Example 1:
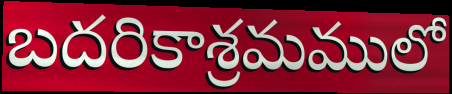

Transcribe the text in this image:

బదరికాశ్రమములో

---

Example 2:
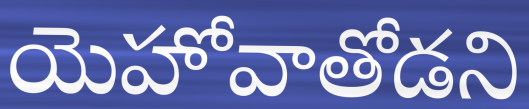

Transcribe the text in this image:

యెహోవాతోడని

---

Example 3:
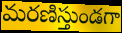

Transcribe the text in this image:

మరణిస్తుండగా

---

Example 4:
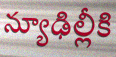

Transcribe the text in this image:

న్యూఢిల్లీకి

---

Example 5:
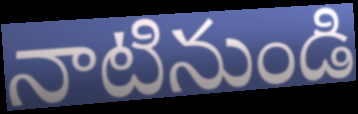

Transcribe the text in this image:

నాటినుండి